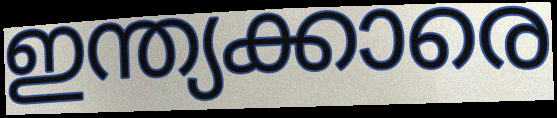
ഇന്ത്യക്കാരെ